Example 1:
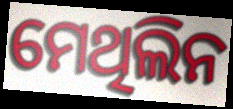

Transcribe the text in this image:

ମେଥିଲିନ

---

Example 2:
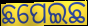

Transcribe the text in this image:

ଛପେଇଛ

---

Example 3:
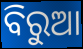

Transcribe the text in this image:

ବିରୁଆ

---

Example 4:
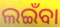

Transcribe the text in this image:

ଲଇଁବା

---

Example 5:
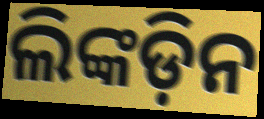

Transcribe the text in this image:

ଲିଙ୍କଡ଼ିନ